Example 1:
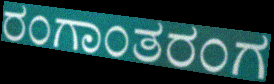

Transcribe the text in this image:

ರಂಗಾಂತರಂಗ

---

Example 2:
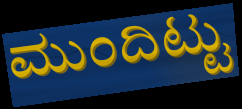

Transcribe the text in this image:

ಮುಂದಿಟ್ಟು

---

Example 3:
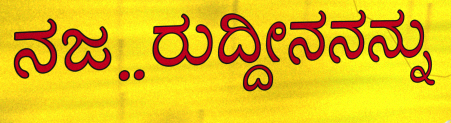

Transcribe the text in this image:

ನಜ಼ರುದ್ದೀನನನ್ನು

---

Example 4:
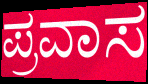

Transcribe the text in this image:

ಪ್ರವಾಸ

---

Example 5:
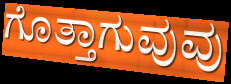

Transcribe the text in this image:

ಗೊತ್ತಾಗುವುವು